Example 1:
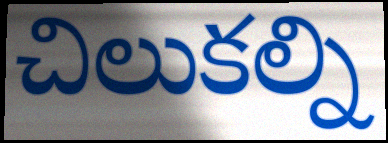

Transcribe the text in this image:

చిలుకల్ని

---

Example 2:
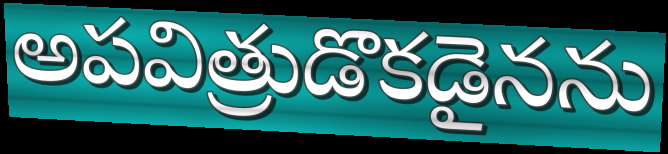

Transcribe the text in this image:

అపవిత్రుడొకడైనను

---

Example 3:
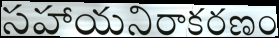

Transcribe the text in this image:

సహాయనిరాకరణం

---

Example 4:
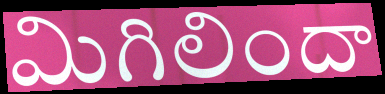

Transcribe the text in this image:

మిగిలిందా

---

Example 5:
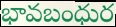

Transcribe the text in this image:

భావబంధుర